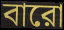
বারো